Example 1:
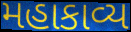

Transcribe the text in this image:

મહાકાવ્ય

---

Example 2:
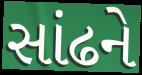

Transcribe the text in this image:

સાંઢને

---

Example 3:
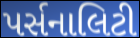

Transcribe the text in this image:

પર્સનાલિટી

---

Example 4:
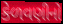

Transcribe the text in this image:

કેળવણીનો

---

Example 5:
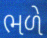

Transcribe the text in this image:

ભળે